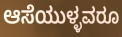
ಆಸೆಯುಳ್ಳವರೂ